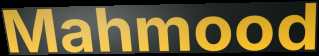
Mahmood